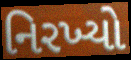
નિરખ્યો